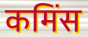
कमिंस